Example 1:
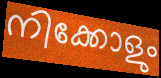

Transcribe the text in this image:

നിക്കോളും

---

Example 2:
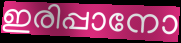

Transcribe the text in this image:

ഇരിപ്പാനോ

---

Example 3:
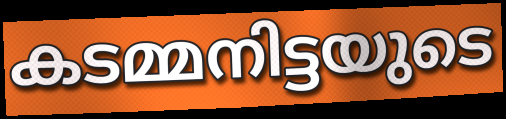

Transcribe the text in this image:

കടമ്മനിട്ടയുടെ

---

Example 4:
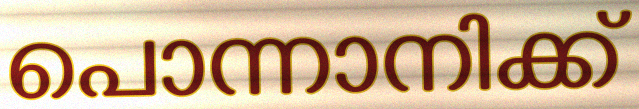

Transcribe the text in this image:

പൊന്നാനിക്ക്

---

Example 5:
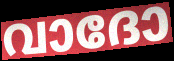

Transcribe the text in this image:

വാദോ